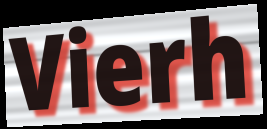
Vierh